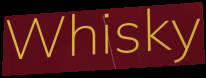
Whisky